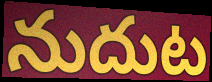
నుదుట